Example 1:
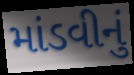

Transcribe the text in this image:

માંડવીનું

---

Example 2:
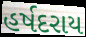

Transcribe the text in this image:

હર્ષદરાય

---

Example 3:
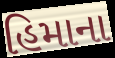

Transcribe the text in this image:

હિમાના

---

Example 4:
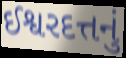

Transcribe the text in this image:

ઈશ્વરદત્તનું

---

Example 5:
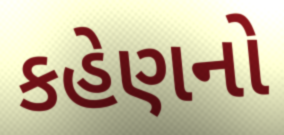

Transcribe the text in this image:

કહેણનો